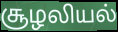
சூழலியல்